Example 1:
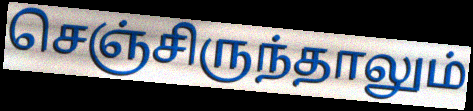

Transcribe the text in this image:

செஞ்சிருந்தாலும்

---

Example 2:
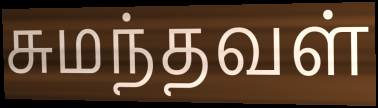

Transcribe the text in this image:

சுமந்தவள்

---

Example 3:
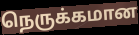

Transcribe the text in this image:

நெருக்கமான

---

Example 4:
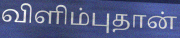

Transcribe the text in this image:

விளிம்புதான்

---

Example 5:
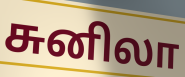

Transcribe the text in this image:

சுனிலா